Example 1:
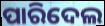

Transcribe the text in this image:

ପାରିଦେଲ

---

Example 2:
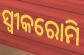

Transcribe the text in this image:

ସ୍ଵୀକରୋମି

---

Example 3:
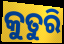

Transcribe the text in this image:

କୁତୁରି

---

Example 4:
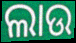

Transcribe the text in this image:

ଲାଉ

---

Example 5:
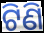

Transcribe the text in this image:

ଟିଣି